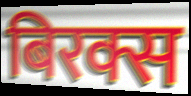
बिरक्स